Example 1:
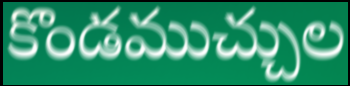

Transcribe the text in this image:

కొండముచ్చుల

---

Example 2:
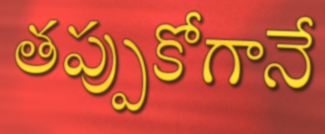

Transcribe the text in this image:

తప్పుకోగానే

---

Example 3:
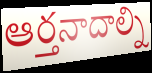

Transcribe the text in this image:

ఆర్తనాదాల్ని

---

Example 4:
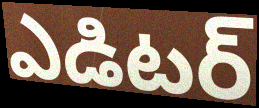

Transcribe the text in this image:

ఎడిటర్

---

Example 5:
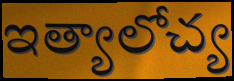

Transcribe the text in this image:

ఇత్యాలోచ్య